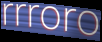
rrroro